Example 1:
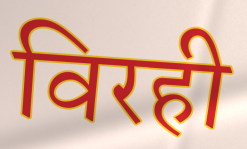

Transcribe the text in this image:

विरही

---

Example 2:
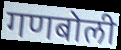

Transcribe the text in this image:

गणबोली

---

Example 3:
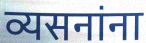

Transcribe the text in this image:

व्यसनांना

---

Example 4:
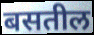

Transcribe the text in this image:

बसतील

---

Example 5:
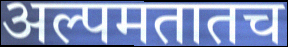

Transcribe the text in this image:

अल्पमतातच